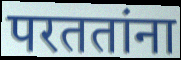
परततांना